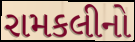
રામકલીનો